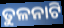
ତୁଳନାଟି